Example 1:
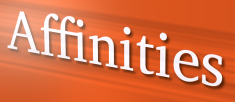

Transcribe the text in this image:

Affinities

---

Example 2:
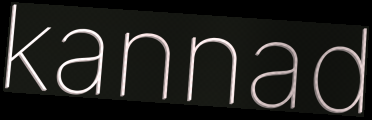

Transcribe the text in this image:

kannad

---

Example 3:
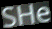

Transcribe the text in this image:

SHe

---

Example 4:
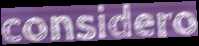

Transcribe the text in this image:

considero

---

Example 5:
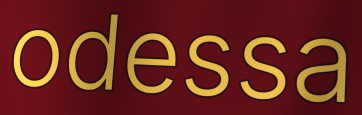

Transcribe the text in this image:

odessa